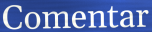
Comentar